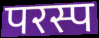
परस्प